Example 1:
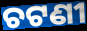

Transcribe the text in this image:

ଚଟଣୀ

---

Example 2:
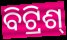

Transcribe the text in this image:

ବିଟ୍ରିଶ୍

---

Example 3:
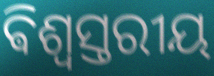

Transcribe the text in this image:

ଵିଶ୍ୱସ୍ତରୀୟ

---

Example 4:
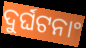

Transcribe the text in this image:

ଦୁର୍ଘଟନାଂ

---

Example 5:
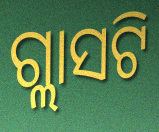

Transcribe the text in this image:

ଗ୍ଲାସଟି